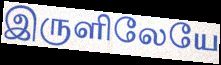
இருளிலேயே